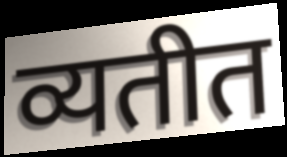
व्यतीत